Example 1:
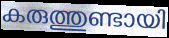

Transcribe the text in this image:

കരുത്തുണ്ടായി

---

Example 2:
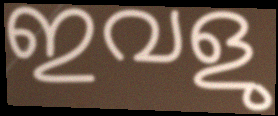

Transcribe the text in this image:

ഇവളു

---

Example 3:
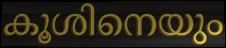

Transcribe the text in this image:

കൂശിനെയും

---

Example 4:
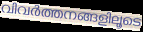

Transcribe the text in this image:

വിവർത്തനങ്ങളിലൂടെ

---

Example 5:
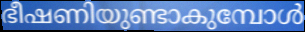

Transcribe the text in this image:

ഭീഷണിയുണ്ടാകുമ്പോൾ